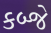
કબ્જે